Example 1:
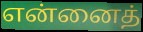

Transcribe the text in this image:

என்னைத்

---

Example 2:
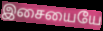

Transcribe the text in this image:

இசையையே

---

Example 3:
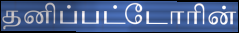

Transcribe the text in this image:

தனிப்பட்டோரின்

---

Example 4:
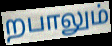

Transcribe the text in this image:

றபாலும்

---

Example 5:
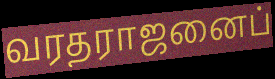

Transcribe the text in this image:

வரதராஜனைப்